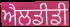
ਐਲਡੀਡੀ